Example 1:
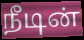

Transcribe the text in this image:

நீடின்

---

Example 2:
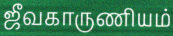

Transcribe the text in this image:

ஜீவகாருணியம்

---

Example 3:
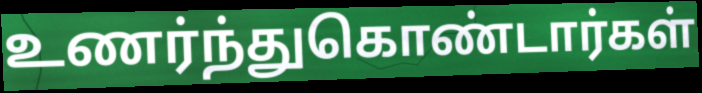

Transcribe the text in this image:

உணர்ந்துகொண்டார்கள்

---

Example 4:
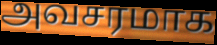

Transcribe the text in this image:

அவசரமாக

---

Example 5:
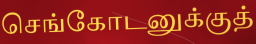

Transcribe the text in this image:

செங்கோடனுக்குத்